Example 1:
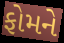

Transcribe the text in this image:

ફોમને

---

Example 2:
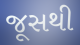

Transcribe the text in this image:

જૂસથી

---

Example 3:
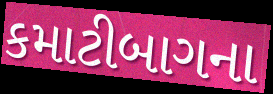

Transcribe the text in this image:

કમાટીબાગના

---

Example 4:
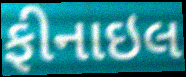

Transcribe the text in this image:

ફીનાઇલ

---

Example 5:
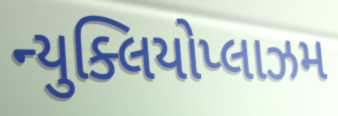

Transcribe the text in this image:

ન્યુક્લિયોપ્લાઝમ